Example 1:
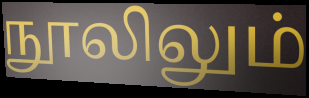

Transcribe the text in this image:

நூலிலும்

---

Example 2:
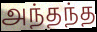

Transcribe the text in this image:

அந்தந்த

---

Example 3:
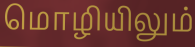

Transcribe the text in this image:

மொழியிலும்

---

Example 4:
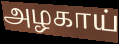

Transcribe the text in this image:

அழகாய்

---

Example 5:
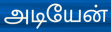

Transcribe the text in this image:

அடியேன்